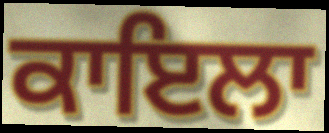
ਕਾਇਲਾ